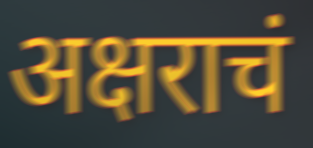
अक्षराचं